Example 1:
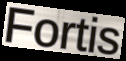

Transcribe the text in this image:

Fortis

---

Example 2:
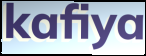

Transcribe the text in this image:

kafiya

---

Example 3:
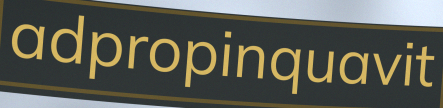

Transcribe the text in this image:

adpropinquavit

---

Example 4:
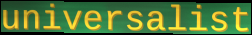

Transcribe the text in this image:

universalist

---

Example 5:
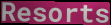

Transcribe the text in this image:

Resorts